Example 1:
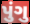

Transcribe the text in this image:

પુંગુ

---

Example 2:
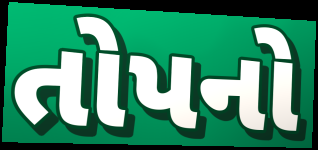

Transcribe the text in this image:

તોપનો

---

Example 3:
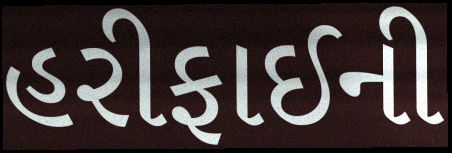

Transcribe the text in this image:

હરીફાઈની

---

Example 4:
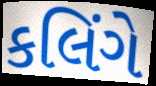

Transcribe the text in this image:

કલિંગે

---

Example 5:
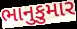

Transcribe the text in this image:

ભાનુકુમાર